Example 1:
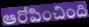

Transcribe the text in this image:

ఆరోపించింది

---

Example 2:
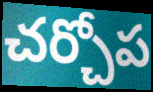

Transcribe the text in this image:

చర్చోప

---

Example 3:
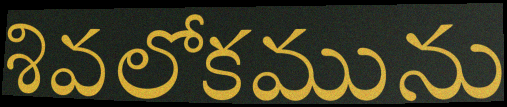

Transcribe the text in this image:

శివలోకమును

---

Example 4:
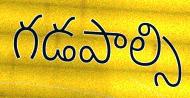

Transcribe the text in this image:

గడపాల్సి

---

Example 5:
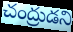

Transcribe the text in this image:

చంద్రుడని